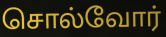
சொல்வோர்